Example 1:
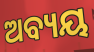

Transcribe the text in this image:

ଅବ୍ୟୟ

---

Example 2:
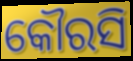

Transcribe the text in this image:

କୌରସି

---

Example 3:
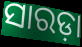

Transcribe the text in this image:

ସାରଡ଼ା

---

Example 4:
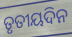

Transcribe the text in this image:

ତୃତୀୟଦିନ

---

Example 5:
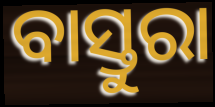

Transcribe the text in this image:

ବାସ୍ତୁରା